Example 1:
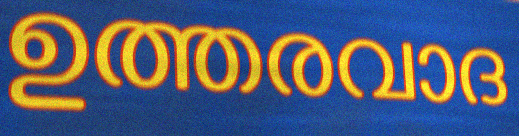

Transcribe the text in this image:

ഉത്തരവാദ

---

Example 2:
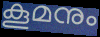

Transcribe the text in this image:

കൂമനും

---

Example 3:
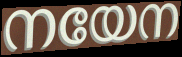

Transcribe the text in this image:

നയേന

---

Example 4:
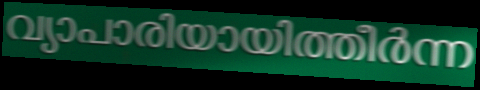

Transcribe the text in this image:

വ്യാപാരിയായിത്തീർന്ന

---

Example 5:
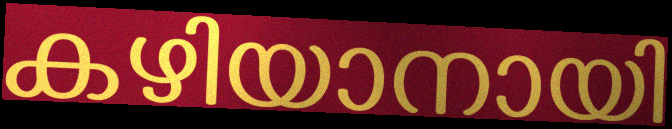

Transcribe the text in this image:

കഴിയാനായി